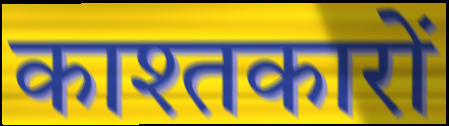
काश्तकारों